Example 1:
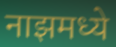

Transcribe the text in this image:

नाझमध्ये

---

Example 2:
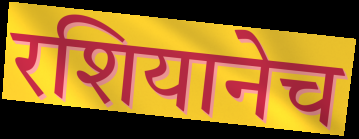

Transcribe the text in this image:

रशियानेच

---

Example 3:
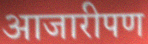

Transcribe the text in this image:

आजारीपण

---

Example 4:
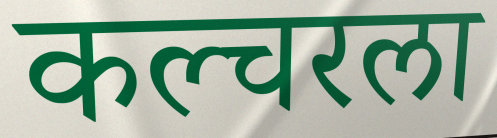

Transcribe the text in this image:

कल्चरला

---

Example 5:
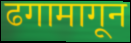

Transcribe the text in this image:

ढगामागून